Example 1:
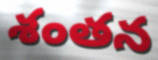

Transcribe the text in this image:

శంతన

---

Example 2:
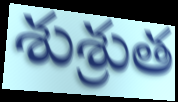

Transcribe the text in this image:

శుశ్రుత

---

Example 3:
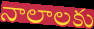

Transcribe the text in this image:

నాలాలకు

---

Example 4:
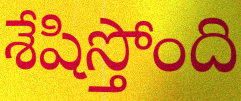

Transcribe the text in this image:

శేషిస్తోంది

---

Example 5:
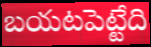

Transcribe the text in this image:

బయటపెట్టేది